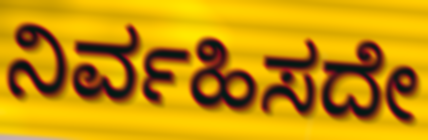
ನಿರ್ವಹಿಸದೇ